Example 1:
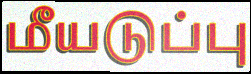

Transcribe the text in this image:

மீயடுப்பு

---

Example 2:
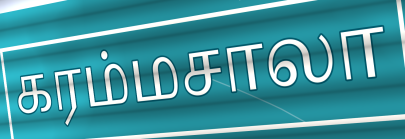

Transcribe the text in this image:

கரம்மசாலா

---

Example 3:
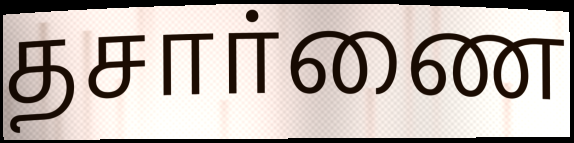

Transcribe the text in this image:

தசார்ணை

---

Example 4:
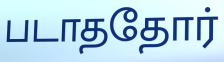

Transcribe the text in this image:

படாததோர்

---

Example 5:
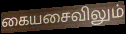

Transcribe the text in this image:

கையசைவிலும்